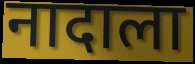
नादाला